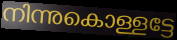
നിന്നുകൊള്ളട്ടേ